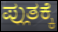
ಪ್ಲುತಕ್ಕೆ